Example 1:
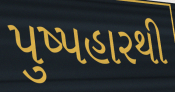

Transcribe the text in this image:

પુષ્પહારથી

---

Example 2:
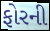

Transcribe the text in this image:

ફોરની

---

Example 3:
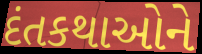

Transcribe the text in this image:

દંતકથાઓને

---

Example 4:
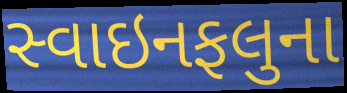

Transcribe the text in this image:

સ્વાઇનફલુના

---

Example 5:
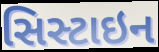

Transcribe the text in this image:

સિસ્ટાઇન